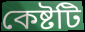
কেষ্টটি